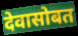
देवासोबत